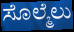
ಸೊಲ್ಮೆಲು